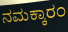
ನಮಕ್ಕಾರಂ